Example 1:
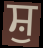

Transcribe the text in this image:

ਸ਼ੁ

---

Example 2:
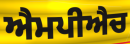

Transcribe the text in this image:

ਐਮਪੀਐਚ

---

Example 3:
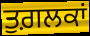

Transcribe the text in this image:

ਤੁਗ਼ਲਕਾਂ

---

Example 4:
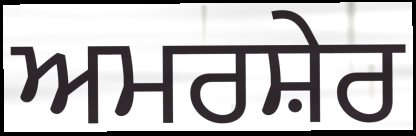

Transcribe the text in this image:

ਅਮਰਸ਼ੇਰ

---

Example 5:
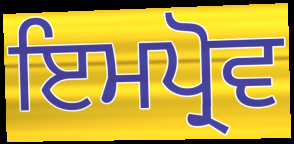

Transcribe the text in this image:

ਇਮਪ੍ਰੋਵ